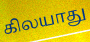
கிலயாது